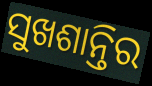
ସୁଖଶାନ୍ତିର